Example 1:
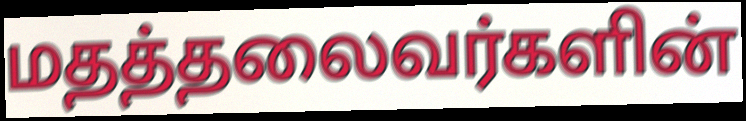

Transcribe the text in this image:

மதத்தலைவர்களின்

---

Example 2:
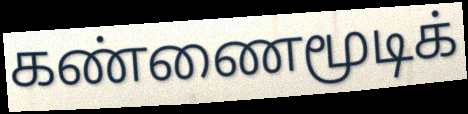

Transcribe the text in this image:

கண்ணைமூடிக்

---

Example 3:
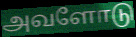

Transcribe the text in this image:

அவளோடு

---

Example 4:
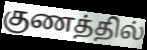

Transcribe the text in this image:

குணத்தில்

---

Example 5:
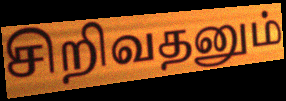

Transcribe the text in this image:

சிறிவதனும்